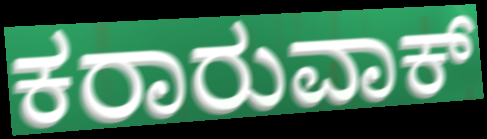
ಕರಾರುವಾಕ್